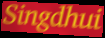
Singdhui